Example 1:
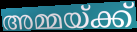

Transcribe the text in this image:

അമ്മയ്ക്ക്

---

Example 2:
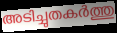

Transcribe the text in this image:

അടിച്ചുതകർത്തു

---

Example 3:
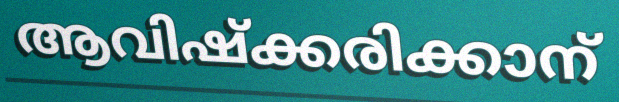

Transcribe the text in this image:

ആവിഷ്ക്കരിക്കാന്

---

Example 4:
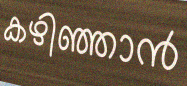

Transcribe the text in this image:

കഴിഞ്ഞാൻ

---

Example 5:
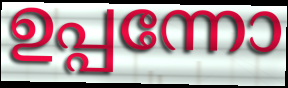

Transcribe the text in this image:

ഉപ്പന്നോ